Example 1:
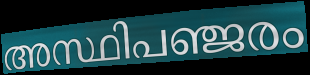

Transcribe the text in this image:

അസ്ഥിപഞ്ജരം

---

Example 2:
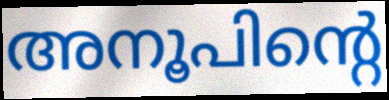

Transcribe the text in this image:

അനൂപിന്റെ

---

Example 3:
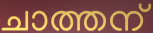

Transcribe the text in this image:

ചാത്തന്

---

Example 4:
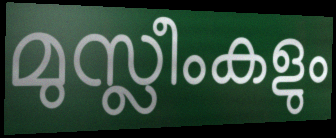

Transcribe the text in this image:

മുസ്ലീംകളും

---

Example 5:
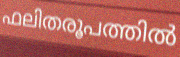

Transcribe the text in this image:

ഫലിതരൂപത്തിൽ